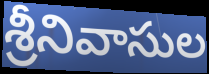
శ్రీనివాసుల